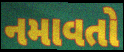
નમાવતો